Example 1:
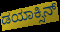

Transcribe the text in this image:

ಡಯಾಕ್ಸಿನ್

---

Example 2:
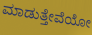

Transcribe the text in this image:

ಮಾಡುತ್ತೇವೆಯೋ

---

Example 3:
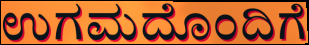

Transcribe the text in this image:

ಉಗಮದೊಂದಿಗೆ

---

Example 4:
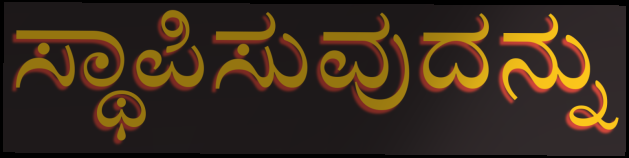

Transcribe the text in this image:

ಸ್ಥಾಪಿಸುವುದನ್ನು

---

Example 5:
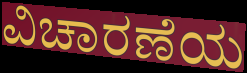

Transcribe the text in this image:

ವಿಚಾರಣೆಯ